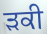
ੜਕੀ